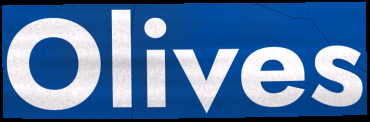
Olives